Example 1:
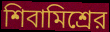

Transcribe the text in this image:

শিবামিশ্রের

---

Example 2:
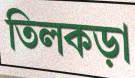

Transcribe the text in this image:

তিলকড়া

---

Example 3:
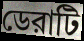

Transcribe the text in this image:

ডেরাটি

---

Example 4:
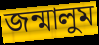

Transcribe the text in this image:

জন্মালুম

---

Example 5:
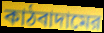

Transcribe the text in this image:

কাঠবাদামের